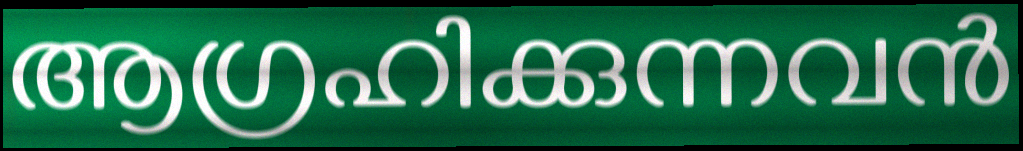
ആഗ്രഹിക്കുന്നവൻ